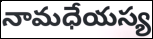
నామధేయస్య